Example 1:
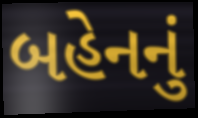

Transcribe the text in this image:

બહેનનું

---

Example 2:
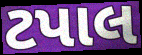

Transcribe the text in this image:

ટપાલ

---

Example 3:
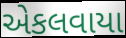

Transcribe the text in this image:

એકલવાયા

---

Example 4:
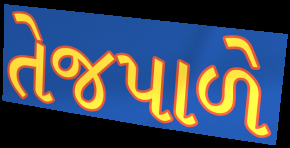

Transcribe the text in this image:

તેજપાળે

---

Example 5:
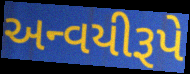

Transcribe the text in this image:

અન્વયીરૂપે